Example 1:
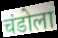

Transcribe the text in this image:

चंडोला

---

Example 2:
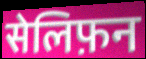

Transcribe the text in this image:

सेलिफ़न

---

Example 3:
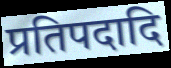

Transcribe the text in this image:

प्रतिपदादि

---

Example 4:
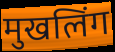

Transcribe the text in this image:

मुखलिंग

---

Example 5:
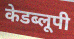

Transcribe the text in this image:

केडब्लूपी